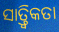
ସାତ୍ତ୍ବିକତା